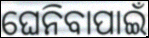
ଘେନିବାପାଇଁ